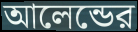
আলেন্ডের